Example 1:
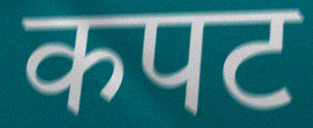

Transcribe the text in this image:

कपट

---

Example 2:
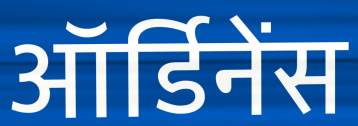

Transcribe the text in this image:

ऑर्डिनेंस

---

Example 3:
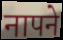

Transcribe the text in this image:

नापने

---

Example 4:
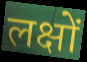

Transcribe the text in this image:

लक्षों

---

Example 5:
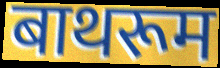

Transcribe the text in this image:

बाथरूम